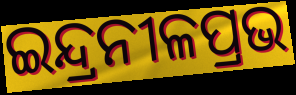
ଇନ୍ଦ୍ରନୀଳପ୍ରଭ